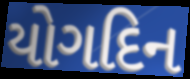
યોગદિન